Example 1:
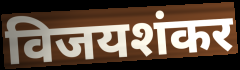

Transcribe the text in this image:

विजयशंकर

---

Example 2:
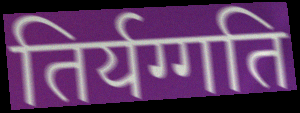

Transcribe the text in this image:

तिर्यग्गति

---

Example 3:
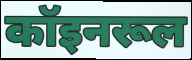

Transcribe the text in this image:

कॉइनरूल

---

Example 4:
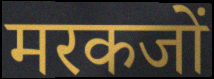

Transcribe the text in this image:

मरकजों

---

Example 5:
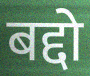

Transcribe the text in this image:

बद्दो